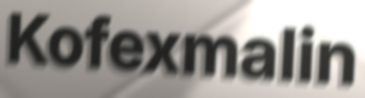
Kofexmalin